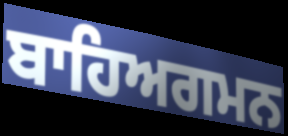
ਬਾਹਿਅਗਮਨ